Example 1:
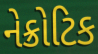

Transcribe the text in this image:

નેક્રોટિક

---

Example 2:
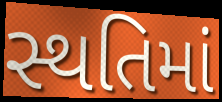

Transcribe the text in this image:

સ્થતિમાં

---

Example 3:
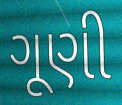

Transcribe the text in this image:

ગૂણી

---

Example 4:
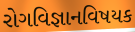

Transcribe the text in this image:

રોગવિજ્ઞાનવિષયક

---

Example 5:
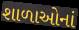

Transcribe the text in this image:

શાળાઓનાં